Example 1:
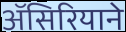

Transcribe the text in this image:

ॲसिरियाने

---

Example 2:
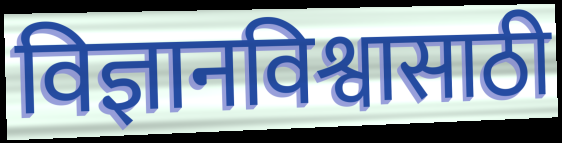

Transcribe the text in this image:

विज्ञानविश्वासाठी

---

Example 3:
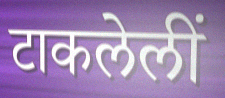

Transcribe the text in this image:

टाकलेलीं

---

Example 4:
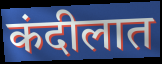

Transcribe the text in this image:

कंदीलात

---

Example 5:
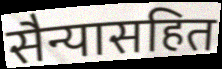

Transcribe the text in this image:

सैन्यासहित